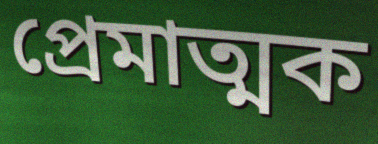
প্রেমাত্মক